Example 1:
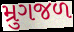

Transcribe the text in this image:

મ્રુગજળ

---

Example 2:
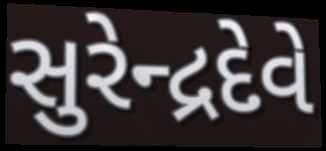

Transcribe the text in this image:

સુરેન્દ્રદેવે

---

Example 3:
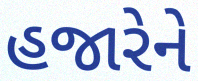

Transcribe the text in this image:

હજારેને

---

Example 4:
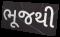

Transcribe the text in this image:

ભૂજથી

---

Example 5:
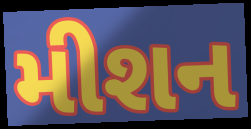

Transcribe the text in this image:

મીશન